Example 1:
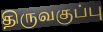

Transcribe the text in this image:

திருவகுப்பு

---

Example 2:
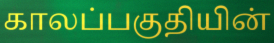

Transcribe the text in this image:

காலப்பகுதியின்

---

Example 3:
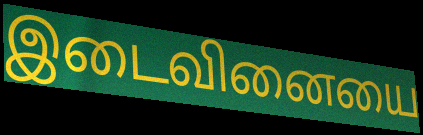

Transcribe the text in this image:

இடைவினையை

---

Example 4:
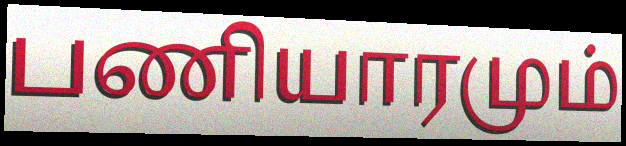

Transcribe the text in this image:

பணியாரமும்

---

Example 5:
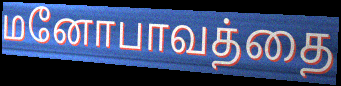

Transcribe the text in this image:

மனோபாவத்தை